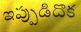
ఇప్పుడిదొక